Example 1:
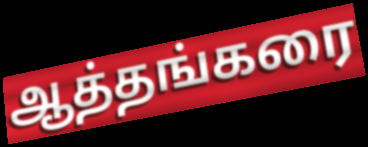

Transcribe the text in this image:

ஆத்தங்கரை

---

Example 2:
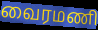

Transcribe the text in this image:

வைரமணி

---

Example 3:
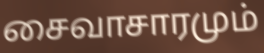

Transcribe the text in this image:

சைவாசாரமும்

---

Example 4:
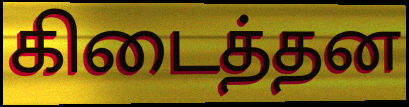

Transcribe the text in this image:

கிடைத்தன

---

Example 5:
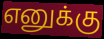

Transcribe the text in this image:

எனுக்கு